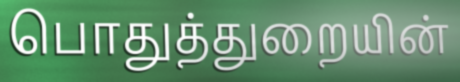
பொதுத்துறையின்